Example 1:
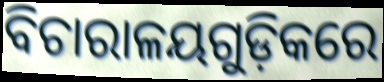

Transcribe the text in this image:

ବିଚାରାଳୟଗୁଡ଼ିକରେ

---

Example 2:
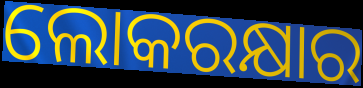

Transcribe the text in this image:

ଲୋକରକ୍ଷାର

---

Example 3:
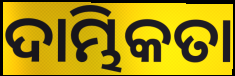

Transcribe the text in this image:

ଦାମ୍ଭିକତା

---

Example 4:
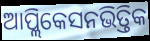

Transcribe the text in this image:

ଆପ୍ଲିକେସନଭିତ୍ତିକ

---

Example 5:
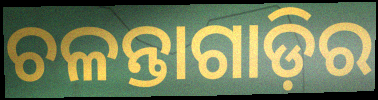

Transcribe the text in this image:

ଚଳନ୍ତାଗାଡ଼ିର